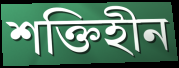
শক্তিহীন